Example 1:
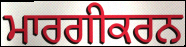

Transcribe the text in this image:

ਮਾਰਗੀਕਰਨ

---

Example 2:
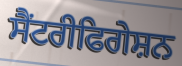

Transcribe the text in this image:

ਸੈਂਟਰੀਫਿਗੇਸ਼ਨ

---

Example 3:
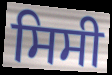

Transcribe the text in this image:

ਸਿਸੀ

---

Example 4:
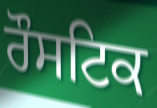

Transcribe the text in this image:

ਰੌਸਟਿਕ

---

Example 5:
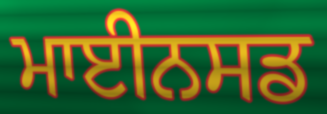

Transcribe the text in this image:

ਮਾਈਨਸਡ